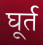
घूर्त